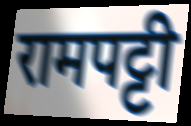
रामपट्टी